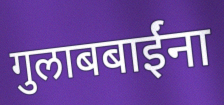
गुलाबबाईंना